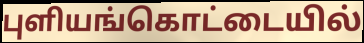
புளியங்கொட்டையில்